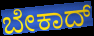
ಬೇಕಾದ್